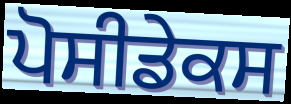
ਪੋਸੀਡੇਕਸ